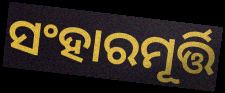
ସଂହାରମୂର୍ତ୍ତି